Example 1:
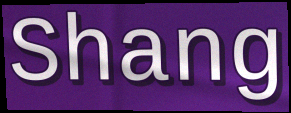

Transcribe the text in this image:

Shang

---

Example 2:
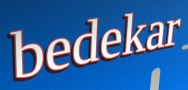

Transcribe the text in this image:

bedekar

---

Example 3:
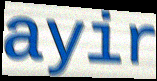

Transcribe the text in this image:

ayir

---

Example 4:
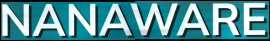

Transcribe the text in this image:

NANAWARE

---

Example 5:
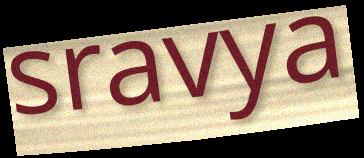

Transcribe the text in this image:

sravya